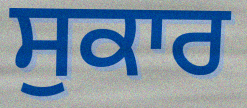
ਸੁਕਾਰ